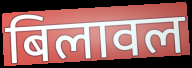
बिलावल